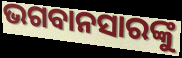
ଭଗବାନସାରଙ୍କୁ